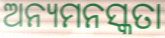
ଅନ୍ୟମନସ୍କତା